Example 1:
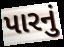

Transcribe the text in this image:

પારનું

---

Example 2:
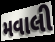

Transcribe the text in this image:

મવાલી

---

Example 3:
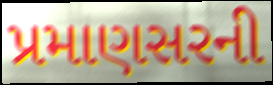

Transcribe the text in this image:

પ્રમાણસરની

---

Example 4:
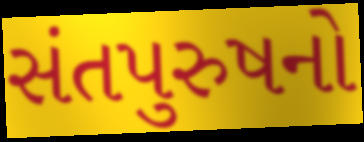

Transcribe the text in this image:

સંતપુરુષનો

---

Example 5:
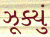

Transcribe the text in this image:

ઝૂક્યું